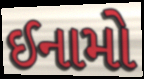
ઈનામો